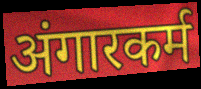
अंगारकर्म